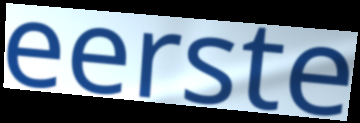
eerste